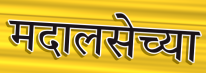
मदालसेच्या